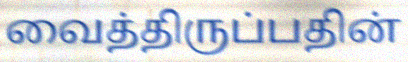
வைத்திருப்பதின்